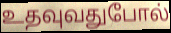
உதவுவதுபோல்